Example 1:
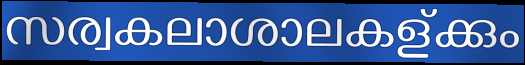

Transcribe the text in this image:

സര്വകലാശാലകള്ക്കും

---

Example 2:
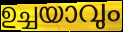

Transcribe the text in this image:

ഉച്ചയാവും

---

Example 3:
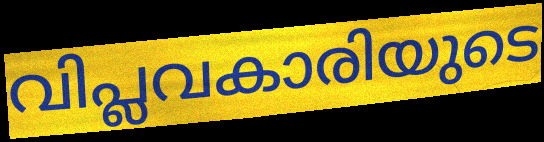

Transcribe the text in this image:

വിപ്ലവകാരിയുടെ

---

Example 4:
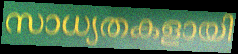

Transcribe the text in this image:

സാധ്യതകളായി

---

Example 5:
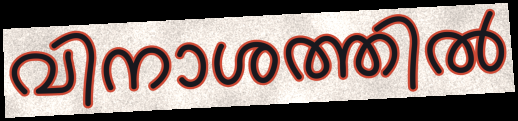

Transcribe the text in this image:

വിനാശത്തിൽ